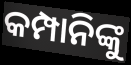
କମ୍ପାନିଙ୍କୁ